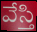
వేస్తి